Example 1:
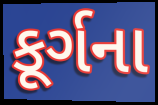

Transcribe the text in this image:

કૂર્ગના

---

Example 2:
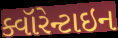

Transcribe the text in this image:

ક્વૉરેન્ટાઇન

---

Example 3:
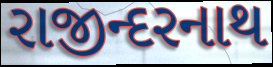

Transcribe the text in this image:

રાજીન્દરનાથ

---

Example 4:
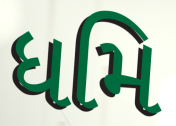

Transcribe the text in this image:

ધમિ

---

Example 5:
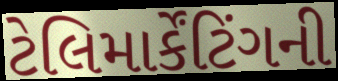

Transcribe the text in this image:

ટેલિમાર્કેંટિંગની